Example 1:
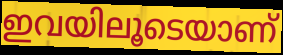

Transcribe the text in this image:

ഇവയിലൂടെയാണ്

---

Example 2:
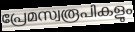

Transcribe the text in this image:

പ്രേമസ്വരൂപികളും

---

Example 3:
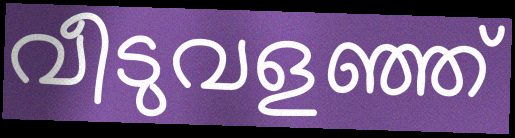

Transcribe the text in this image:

വീടുവളഞ്ഞ്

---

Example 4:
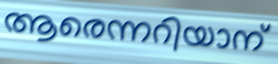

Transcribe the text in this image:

ആരെന്നറിയാന്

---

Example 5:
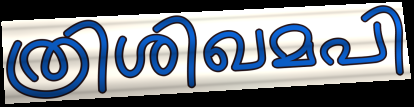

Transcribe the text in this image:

ത്രിശിഖമപി